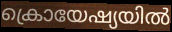
ക്രൊയേഷ്യയിൽ